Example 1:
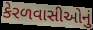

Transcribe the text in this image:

કેરળવાસીઓનું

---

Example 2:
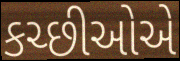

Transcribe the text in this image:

કચ્છીઓએ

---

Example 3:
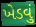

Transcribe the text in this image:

ખેડવું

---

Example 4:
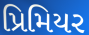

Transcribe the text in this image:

પ્રિમિયર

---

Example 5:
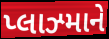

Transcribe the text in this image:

પ્લાઝ્માને